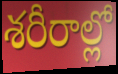
శరీరాల్లో